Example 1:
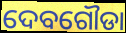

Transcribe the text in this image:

ଦେବଗୌଡା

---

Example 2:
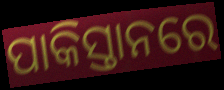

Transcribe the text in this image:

ପାକିସ୍ତାନରେ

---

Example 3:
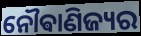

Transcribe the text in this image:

ନୌଵାଣିଜ୍ୟର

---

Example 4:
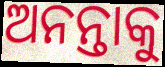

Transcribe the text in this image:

ଅନନ୍ତାକୁ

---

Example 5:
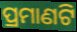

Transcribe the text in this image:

ପ୍ରମାଣଟି